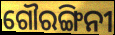
ଗୌରଙ୍ଗିନୀ